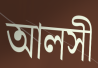
আলসী